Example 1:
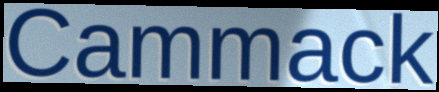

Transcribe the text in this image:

Cammack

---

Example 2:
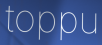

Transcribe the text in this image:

toppu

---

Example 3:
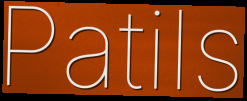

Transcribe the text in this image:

Patils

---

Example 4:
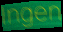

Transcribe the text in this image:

Ingen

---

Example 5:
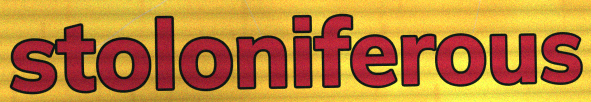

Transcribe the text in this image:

stoloniferous